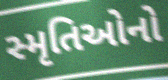
સ્મૃતિઓનો